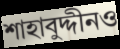
শাহাবুদ্দীনও